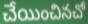
చేయించినచో